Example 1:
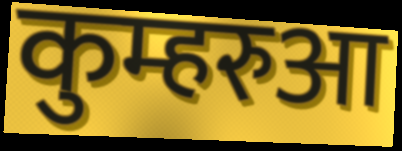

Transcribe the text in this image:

कुम्हरुआ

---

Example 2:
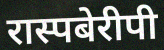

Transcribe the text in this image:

रास्पबेरीपी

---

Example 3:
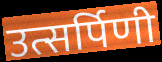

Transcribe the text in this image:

उत्सर्पिणी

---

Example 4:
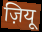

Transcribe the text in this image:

ज़ियू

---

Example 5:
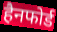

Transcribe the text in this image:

हैनफोर्ड